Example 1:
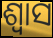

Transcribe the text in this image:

ଶ୍ୱାସ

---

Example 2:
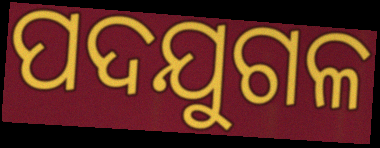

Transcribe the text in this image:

ପଦଯୁଗଳ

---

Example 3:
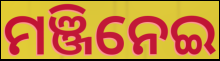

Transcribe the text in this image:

ମଞ୍ଜିନେଇ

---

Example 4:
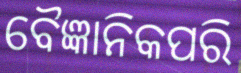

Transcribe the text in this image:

ବୈଜ୍ଞାନିକପରି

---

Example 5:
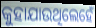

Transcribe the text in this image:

କୁହାଯାଉଥିଲେହେଁ